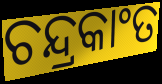
ଚନ୍ଦ୍ରକାଂତ